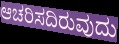
ಆಚರಿಸದಿರುವುದು